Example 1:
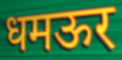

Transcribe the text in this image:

धमऊर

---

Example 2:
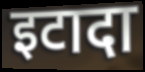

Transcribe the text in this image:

इटादा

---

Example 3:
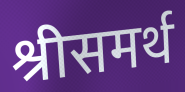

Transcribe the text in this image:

श्रीसमर्थ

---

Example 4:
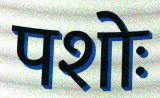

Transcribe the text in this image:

पशोः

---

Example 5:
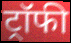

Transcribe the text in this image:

ट्रॉफी